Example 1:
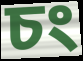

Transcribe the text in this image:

চং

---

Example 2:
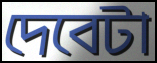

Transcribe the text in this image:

দেবেটা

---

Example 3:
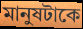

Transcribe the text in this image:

মানুষটাকে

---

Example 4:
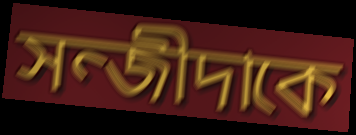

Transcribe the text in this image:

সন্জীদাকে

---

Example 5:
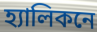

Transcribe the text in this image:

হ্যালিকনে